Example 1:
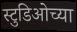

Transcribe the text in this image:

स्टुडिओच्या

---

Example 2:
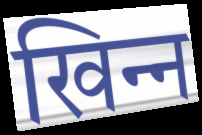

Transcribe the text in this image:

खिन्‍न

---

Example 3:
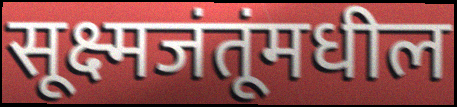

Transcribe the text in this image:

सूक्ष्मजंतूंमधील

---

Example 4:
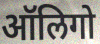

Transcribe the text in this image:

ऑलिगो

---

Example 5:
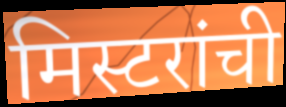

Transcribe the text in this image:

मिस्टरांची